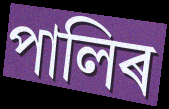
পালিৰ